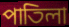
পাতিলা